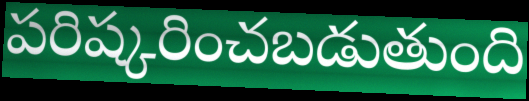
పరిష్కరించబడుతుంది